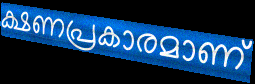
ക്ഷണപ്രകാരമാണ്